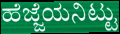
ಹೆಜ್ಜೆಯನಿಟ್ಟು